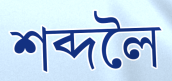
শব্দলৈ